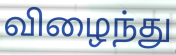
விழைந்து